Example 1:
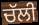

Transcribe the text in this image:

ਚੱਲੀ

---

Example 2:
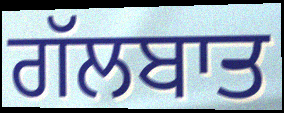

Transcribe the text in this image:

ਗੱਲਬਾਤ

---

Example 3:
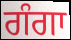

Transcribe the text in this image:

ਗੰਗਾ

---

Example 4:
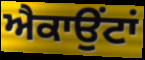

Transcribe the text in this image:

ਐਕਾਉਂਟਾਂ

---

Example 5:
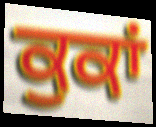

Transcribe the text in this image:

ਕੁਕਾਂ